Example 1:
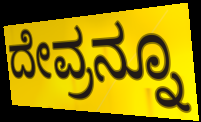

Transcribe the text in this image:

ದೇವ್ರನ್ನೂ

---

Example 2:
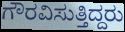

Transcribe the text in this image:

ಗೌರವಿಸುತ್ತಿದ್ದರು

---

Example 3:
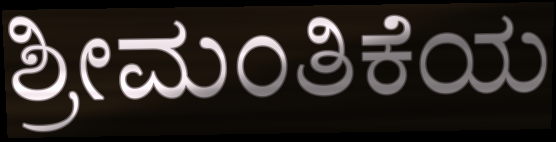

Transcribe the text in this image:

ಶ್ರೀಮಂತಿಕೆಯ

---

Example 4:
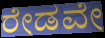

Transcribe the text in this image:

ರೇಡವೇ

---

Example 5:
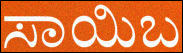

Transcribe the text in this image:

ಸಾಯಿಬ